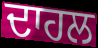
ਦਾਹਲ